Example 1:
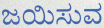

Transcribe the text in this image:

ಜಯಿಸುವ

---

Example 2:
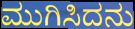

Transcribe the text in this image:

ಮುಗಿಸಿದನು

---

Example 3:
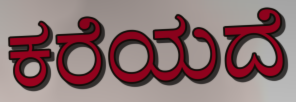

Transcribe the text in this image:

ಕರೆಯದೆ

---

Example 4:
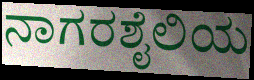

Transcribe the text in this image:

ನಾಗರಶೈಲಿಯ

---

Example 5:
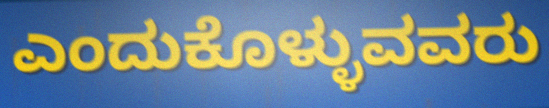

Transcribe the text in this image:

ಎಂದುಕೊಳ್ಳುವವರು